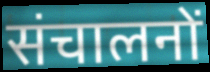
संचालनों